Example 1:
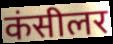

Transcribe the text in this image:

कंसीलर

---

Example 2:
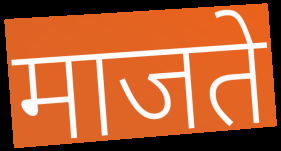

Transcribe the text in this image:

माजते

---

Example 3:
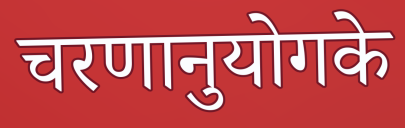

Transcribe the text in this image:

चरणानुयोगके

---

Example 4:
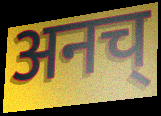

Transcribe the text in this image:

अनच्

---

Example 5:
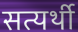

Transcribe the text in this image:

सत्यर्थी